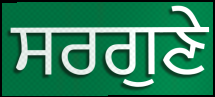
ਸਰਗੁਣੇ